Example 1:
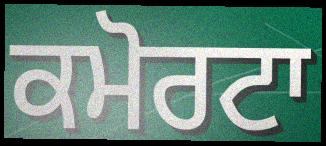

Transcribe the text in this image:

ਕਮੋਰਟਾ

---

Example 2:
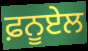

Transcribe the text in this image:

ਫ਼ਨੂਏਲ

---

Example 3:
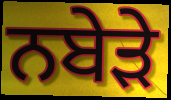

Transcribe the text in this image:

ਨਬੇੜੇ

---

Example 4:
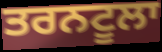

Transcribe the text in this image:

ਤਰਨਟੂਲਾ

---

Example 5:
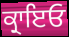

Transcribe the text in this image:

ਕ੍ਰਾਇਓ